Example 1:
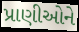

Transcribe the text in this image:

પ્રાણીઓને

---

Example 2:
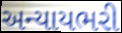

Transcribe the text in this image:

અન્યાયભરી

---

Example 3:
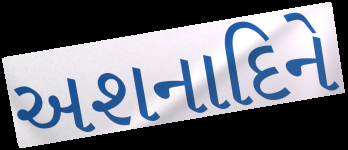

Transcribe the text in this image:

અશનાદિને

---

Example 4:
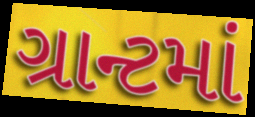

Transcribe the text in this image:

ગ્રાન્ટમાં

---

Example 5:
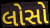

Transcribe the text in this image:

લોસો